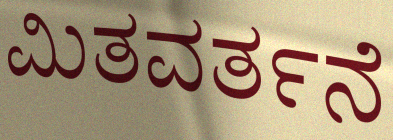
ಮಿತವರ್ತನೆ